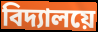
বিদ্যালয়ে